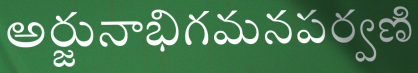
అర్జునాభిగమనపర్వణి